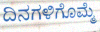
ದಿನಗಳಿಗೊಮ್ಮೆ